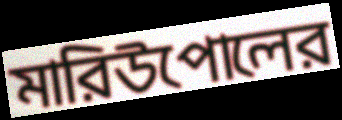
মারিউপোলের